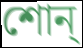
শোন্